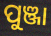
ପୁଞ୍ଜା